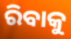
ରିବାକୁ